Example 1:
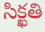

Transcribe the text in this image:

సిక్ఖతి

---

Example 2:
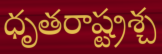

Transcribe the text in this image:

ధృతరాష్ట్రశ్చ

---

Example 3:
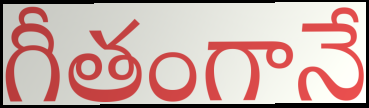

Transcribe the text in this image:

గీతంగానే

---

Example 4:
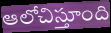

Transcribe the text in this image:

ఆలోచిస్తూంది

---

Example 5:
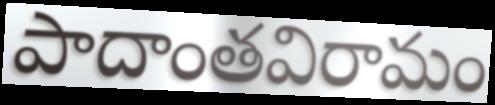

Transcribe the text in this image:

పాదాంతవిరామం